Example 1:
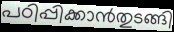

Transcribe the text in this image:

പഠിപ്പിക്കാൻതുടങ്ങി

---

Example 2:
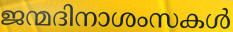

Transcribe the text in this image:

ജന്മദിനാശംസകൾ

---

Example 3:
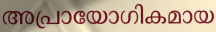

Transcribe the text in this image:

അപ്രായോഗികമായ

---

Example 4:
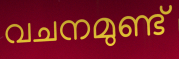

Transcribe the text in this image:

വചനമുണ്ട്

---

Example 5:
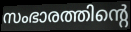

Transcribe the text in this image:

സംഭാരത്തിന്റെ